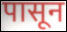
पासून